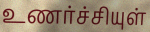
உணர்ச்சியுள்